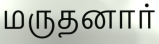
மருதனார்